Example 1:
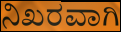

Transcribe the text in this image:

ನಿಖರವಾಗಿ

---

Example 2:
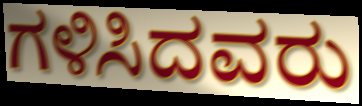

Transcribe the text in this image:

ಗಳಿಸಿದವರು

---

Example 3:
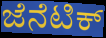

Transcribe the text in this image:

ಜೆನೆಟಿಕ್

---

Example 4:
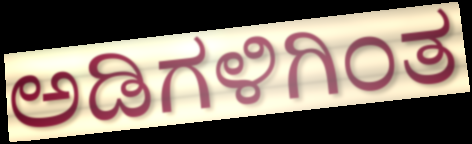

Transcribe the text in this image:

ಅಡಿಗಳಿಗಿಂತ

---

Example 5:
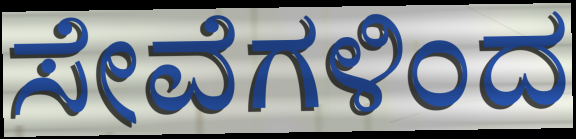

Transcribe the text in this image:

ಸೇವೆಗಳಿಂದ